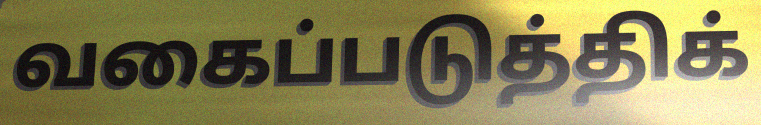
வகைப்படுத்திக்